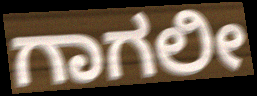
ಗಾಗಲೀ